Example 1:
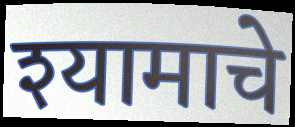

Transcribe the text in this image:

श्यामाचे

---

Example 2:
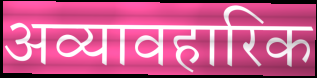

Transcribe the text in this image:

अव्यावहारिक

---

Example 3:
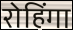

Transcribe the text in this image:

रोहिंगा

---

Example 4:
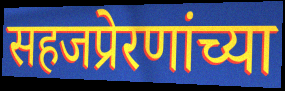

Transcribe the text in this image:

सहजप्रेरणांच्या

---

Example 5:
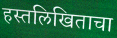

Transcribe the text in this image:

हस्तलिखिताचा